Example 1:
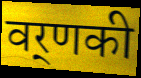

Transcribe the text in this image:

वर्णकी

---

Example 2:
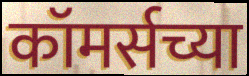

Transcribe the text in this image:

कॉमर्सच्या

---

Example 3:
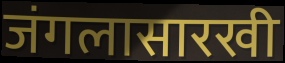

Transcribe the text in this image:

जंगलासारखी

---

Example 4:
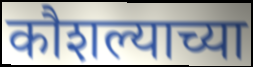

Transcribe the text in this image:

कौशल्याच्या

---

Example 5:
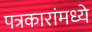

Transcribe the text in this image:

पत्रकारांमध्ये